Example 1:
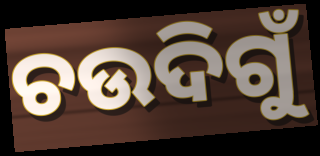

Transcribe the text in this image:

ଚଉଦିଗୁଁ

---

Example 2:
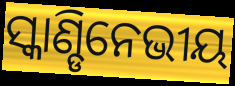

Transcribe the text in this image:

ସ୍କାଣ୍ଡିନେଭୀୟ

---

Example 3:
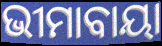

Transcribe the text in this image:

ଭୀମାବାୟା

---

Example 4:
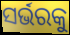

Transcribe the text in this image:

ସର୍ଭରକୁ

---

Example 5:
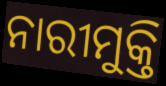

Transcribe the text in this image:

ନାରୀମୁକ୍ତି